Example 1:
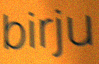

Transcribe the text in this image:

birju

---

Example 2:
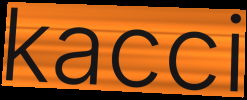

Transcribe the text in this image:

kacci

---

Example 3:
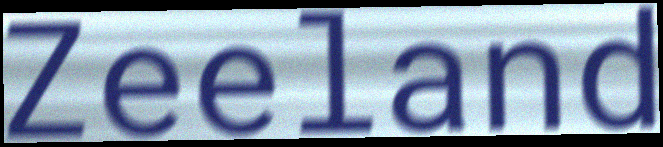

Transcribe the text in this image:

Zeeland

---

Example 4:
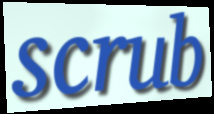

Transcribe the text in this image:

scrub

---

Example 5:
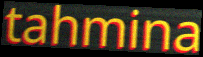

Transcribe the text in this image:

tahmina